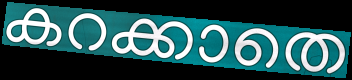
കറക്കാതെ